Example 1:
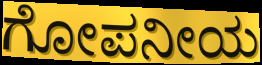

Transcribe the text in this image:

ಗೋಪನೀಯ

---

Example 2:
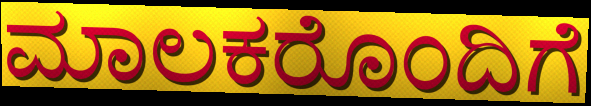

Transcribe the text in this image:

ಮಾಲಕರೊಂದಿಗೆ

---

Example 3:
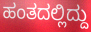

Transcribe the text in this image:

ಹಂತದಲ್ಲಿದ್ದು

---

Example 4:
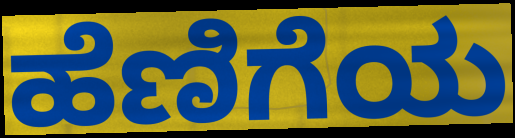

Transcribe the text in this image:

ಹೆಣಿಗೆಯ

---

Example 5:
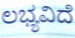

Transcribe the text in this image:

ಲಭ್ಯವಿದೆ